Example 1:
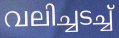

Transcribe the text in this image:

വലിച്ചടച്ച്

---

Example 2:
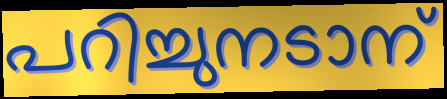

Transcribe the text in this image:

പറിച്ചുനടാന്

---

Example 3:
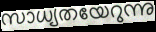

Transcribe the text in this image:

സാധ്യതയേറുന്നു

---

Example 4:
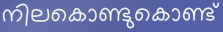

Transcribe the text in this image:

നിലകൊണ്ടുകൊണ്ട്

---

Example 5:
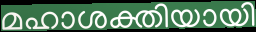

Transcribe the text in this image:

മഹാശക്തിയായി